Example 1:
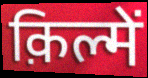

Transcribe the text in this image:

क़िल्में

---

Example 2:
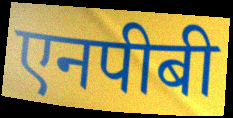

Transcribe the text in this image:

एनपीबी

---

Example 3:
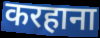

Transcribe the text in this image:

करहाना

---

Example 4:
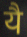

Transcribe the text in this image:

यै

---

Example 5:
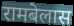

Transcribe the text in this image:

रामबेलास